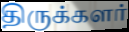
திருக்களர்